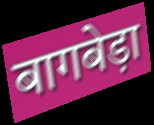
बागबेड़ा